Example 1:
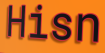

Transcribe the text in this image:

Hisn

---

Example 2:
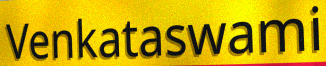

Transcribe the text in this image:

Venkataswami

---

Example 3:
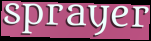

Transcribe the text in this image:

sprayer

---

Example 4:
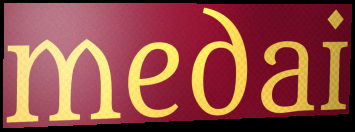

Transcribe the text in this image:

medai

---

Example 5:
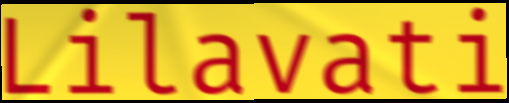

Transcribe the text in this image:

Lilavati